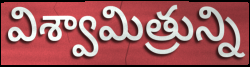
విశ్వామిత్రున్ని